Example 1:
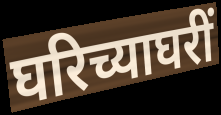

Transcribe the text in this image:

घरिच्याघरीं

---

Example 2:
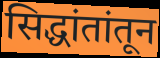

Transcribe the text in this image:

सिद्धांतांतून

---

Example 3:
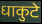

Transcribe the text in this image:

धाकुटे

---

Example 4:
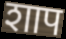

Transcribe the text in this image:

शाप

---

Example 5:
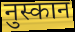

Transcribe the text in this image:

नुस्कान